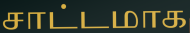
சாட்டமாக